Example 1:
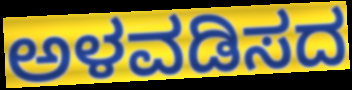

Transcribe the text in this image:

ಅಳವಡಿಸದ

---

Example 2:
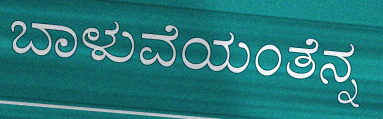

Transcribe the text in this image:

ಬಾಳುವೆಯಂತೆನ್ನ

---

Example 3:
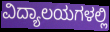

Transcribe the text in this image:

ವಿದ್ಯಾಲಯಗಳಲ್ಲಿ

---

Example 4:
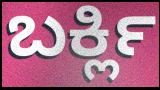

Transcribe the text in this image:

ಬರ್ಕ್ಲಿ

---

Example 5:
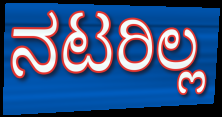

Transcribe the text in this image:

ನಟರಿಲ್ಲ